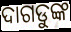
ଦାଗଡୁଙ୍କ